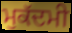
ਮੁਕੱਦਮੀ